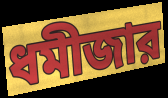
ধমীজার